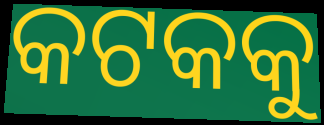
କଟକକୁ